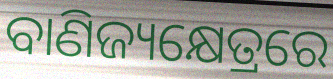
ବାଣିଜ୍ୟକ୍ଷେତ୍ରରେ